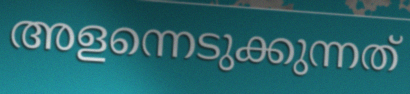
അളന്നെടുക്കുന്നത്